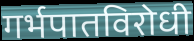
गर्भपातविरोधी